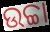
ଉଚ୍ଚା